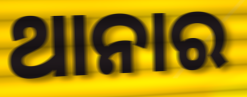
ଥାନାର